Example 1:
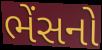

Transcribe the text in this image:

ભેંસનો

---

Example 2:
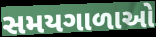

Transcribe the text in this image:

સમયગાળાઓ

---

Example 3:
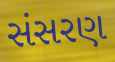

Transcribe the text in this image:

સંસરણ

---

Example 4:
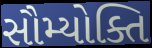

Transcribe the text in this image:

સૌમ્યોક્તિ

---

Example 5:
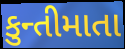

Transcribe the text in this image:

કુન્તીમાતા